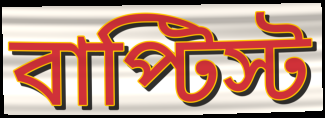
বাপ্টিস্ট